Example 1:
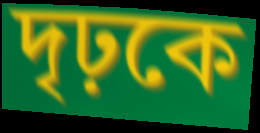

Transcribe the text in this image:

দৃঢ়কে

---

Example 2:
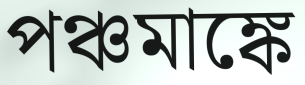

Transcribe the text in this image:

পঞ্চমাঙ্কে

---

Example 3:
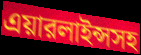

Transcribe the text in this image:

এয়ারলাইন্সসহ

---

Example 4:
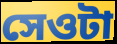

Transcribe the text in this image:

সেওটা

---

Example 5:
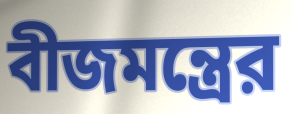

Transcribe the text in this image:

বীজমন্ত্রের